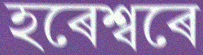
হৰেশ্বৰে